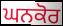
ਘਨਕੋਰ